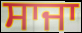
ਸਾਜਾ